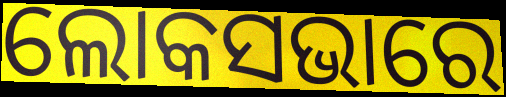
ଲୋକସଭାରେ